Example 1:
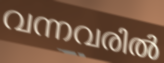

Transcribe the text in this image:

വന്നവരിൽ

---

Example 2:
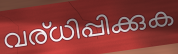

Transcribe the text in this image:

വര്ധിപ്പിക്കുക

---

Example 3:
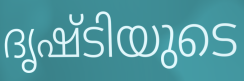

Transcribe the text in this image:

ദൃഷ്ടിയുടെ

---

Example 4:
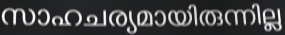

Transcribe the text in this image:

സാഹചര്യമായിരുന്നില്ല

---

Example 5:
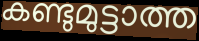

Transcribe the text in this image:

കണ്ടുമുട്ടാത്ത